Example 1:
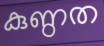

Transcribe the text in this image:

കുണ്ഠത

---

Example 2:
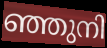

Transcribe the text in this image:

ഞ്ഞുനി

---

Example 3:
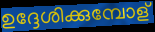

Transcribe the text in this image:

ഉദ്ദേശിക്കുമ്പോള്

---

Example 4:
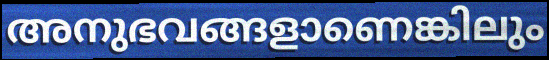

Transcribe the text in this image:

അനുഭവങ്ങളാണെങ്കിലും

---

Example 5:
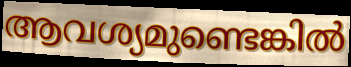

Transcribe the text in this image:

ആവശ്യമുണ്ടെങ്കിൽ